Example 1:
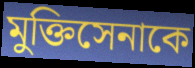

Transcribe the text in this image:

মুক্তিসেনাকে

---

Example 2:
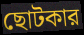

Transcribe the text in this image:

ছোটকার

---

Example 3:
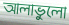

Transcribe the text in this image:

আলাভুলো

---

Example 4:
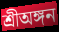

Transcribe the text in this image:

শ্রীঅঙ্গন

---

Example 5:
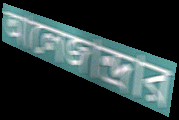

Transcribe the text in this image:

আলেজান্দ্রার